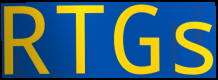
RTGs